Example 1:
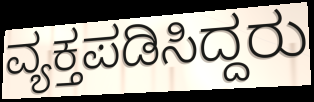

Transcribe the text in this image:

ವ್ಯಕ್ತಪಡಿಸಿದ್ದರು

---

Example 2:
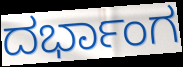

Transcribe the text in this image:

ದರ್ಭಾಂಗ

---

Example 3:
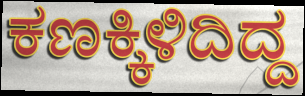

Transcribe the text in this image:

ಕಣಕ್ಕಿಳಿದಿದ್ದ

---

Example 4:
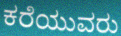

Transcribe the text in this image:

ಕರೆಯುವರು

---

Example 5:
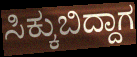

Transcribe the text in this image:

ಸಿಕ್ಕುಬಿದ್ದಾಗ